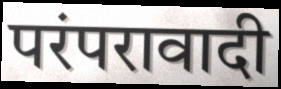
परंपरावादी